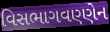
વિસભાગવણ્ણેન